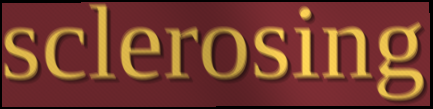
sclerosing